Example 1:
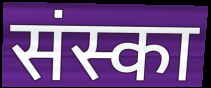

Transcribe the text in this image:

संस्का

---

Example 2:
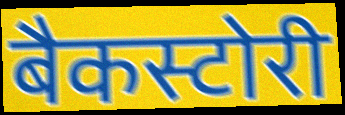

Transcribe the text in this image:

बैकस्टोरी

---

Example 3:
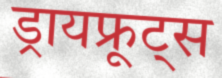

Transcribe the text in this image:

ड्रायफ्रूट्स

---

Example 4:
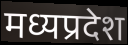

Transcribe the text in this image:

मध्‍यप्रदेश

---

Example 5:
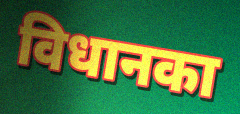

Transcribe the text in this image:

विधानका